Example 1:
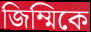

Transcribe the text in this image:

জিম্মিকে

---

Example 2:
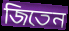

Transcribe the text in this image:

জিতেন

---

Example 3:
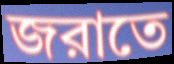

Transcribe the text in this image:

জরাতে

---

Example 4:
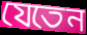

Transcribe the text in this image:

যেতেন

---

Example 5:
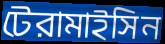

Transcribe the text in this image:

টেরামাইসিন